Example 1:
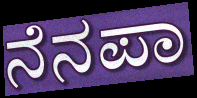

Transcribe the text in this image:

ನೆನಪಾ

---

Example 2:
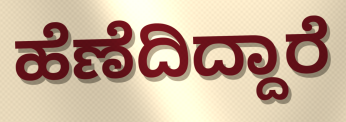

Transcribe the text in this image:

ಹೆಣೆದಿದ್ದಾರೆ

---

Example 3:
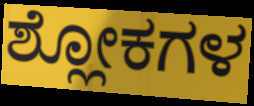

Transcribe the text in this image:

ಶ್ಲೋಕಗಳ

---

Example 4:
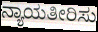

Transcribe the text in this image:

ನ್ಯಾಯತೀರಿಸು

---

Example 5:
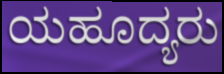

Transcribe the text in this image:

ಯಹೂದ್ಯರು